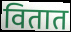
वितात